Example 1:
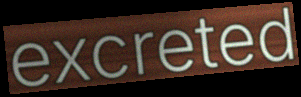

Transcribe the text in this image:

excreted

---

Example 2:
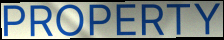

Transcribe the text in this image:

PROPERTY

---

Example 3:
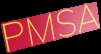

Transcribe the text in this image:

PMSA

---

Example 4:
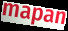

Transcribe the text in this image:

mapan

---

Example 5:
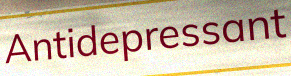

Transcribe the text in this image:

Antidepressant